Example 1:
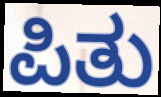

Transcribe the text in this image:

ಪಿತು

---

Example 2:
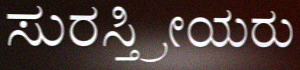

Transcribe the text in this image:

ಸುರಸ್ತ್ರೀಯರು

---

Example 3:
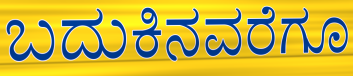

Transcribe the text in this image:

ಬದುಕಿನವರೆಗೂ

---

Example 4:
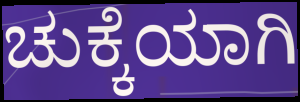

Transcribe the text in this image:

ಚುಕ್ಕೆಯಾಗಿ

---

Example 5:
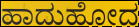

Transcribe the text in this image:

ಹಾದುಹೋದ